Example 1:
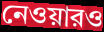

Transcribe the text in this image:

নেওয়ারও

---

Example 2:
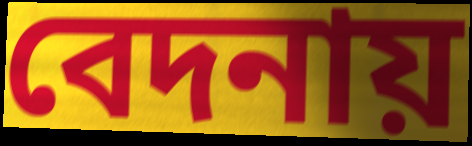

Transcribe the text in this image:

বেদনায়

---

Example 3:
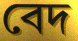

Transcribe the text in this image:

বেদ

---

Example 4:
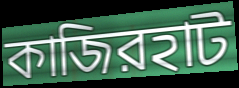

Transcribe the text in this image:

কাজিরহাট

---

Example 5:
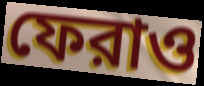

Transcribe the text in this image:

ফেরাও